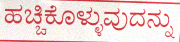
ಹಚ್ಚಿಕೊಳ್ಳುವುದನ್ನು